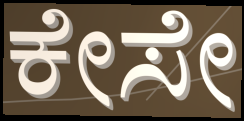
ಕೇಸೇ